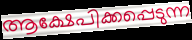
ആക്ഷേപിക്കപ്പെടുന്ന